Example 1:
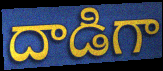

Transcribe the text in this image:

దాడిగా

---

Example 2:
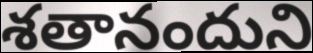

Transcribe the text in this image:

శతానందుని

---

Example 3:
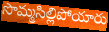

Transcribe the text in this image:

సొమ్మసిల్లిపోయారు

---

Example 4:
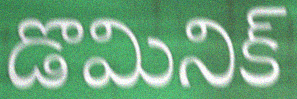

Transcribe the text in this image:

డొమినిక్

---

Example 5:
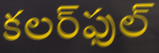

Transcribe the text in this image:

కలర్‌ఫుల్